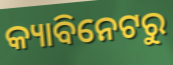
କ୍ୟାବିନେଟରୁ